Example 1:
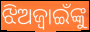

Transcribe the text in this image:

ଝିଅଜ୍ୱାଇଁଙ୍କୁ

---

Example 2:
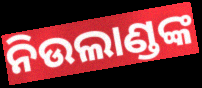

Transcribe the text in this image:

ନିଉଲାଣ୍ଡଙ୍କ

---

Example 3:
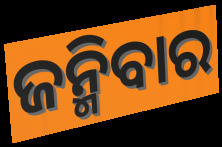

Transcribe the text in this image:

ଜନ୍ମିବାର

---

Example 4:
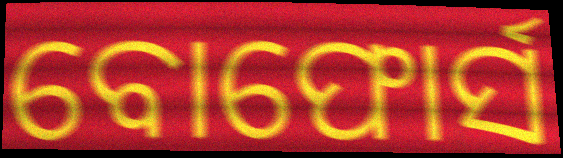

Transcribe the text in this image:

ବୋଫୋର୍ସ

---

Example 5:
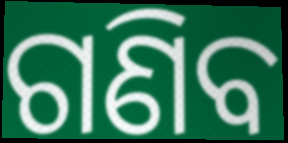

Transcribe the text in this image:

ଗଣିବ